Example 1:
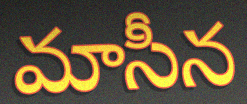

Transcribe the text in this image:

మాసీన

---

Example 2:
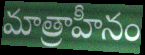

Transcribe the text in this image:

మాత్రాహీనం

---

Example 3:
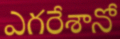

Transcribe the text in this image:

ఎగరేశానో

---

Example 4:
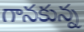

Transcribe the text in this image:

గానకున్న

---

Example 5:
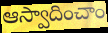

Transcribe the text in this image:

ఆస్వాదించాం